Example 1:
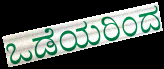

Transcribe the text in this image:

ಒಡೆಯರಿಂದ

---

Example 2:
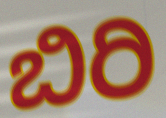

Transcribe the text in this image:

ಬಿರಿ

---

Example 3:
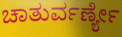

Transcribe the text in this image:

ಚಾತುರ್ವರ್ಣ್ಯೇ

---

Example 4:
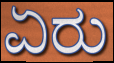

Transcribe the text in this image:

ಏರು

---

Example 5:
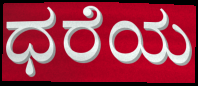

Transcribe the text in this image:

ಧರೆಯ